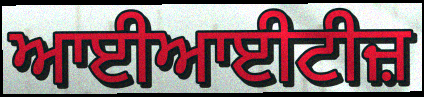
ਆਈਆਈਟੀਜ਼